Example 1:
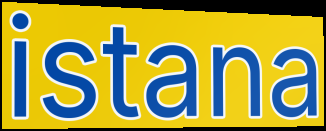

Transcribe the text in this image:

istana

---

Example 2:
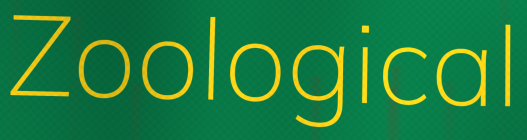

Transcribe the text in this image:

Zoological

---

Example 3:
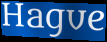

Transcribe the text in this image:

Hague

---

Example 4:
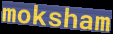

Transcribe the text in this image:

moksham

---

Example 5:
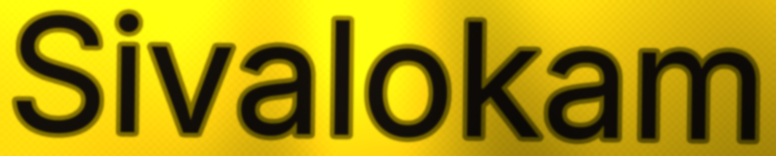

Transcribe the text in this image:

Sivalokam